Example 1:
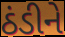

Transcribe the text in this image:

ઠંડીને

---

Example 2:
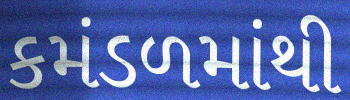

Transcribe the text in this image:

કમંડળમાંથી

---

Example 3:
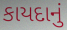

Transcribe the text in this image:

કાયદાનું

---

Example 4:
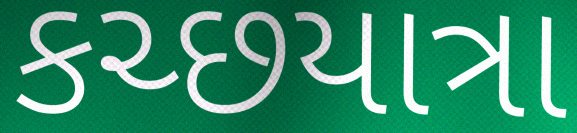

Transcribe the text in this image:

કચ્છયાત્રા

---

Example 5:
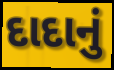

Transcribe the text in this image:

દાદાનું